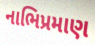
નાભિપ્રમાણ